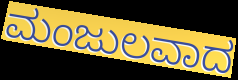
ಮಂಜುಲವಾದ